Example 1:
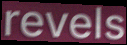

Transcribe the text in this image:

revels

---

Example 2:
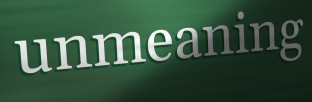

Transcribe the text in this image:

unmeaning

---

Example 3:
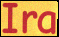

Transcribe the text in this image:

Ira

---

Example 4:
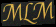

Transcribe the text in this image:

MLM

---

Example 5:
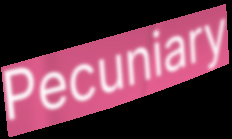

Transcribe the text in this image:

Pecuniary